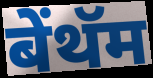
बेंथॅम